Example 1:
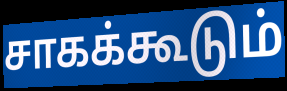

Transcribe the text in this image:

சாகக்கூடும்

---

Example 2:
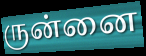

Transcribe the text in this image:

ருன்னை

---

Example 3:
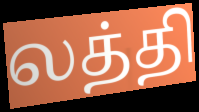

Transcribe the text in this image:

லத்தி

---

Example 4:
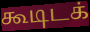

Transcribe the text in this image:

கூடிடக்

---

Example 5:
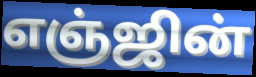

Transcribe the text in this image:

எஞ்ஜின்